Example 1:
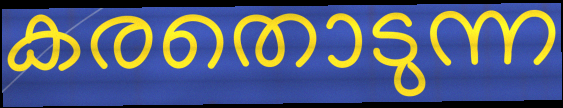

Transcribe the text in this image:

കരതൊടുന്ന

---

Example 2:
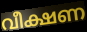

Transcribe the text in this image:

വീക്ഷണ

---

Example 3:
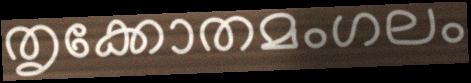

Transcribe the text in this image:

തൃക്കോതമംഗലം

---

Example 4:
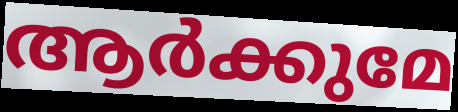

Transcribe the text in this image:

ആർക്കുമേ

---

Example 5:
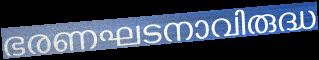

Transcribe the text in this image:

ഭരണഘടനാവിരുദ്ധ